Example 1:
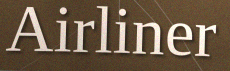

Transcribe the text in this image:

Airliner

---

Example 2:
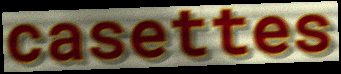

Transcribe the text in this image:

casettes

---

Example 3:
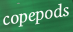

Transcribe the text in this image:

copepods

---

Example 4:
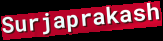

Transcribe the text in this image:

Surjaprakash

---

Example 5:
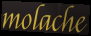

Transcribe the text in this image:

molache